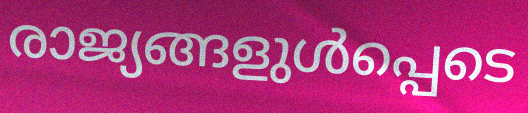
രാജ്യങ്ങളുൾപ്പെടെ